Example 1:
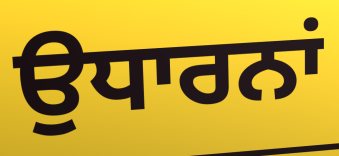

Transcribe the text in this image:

ਉਧਾਰਨਾਂ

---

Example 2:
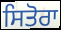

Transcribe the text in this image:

ਸਿਤੋਰਾ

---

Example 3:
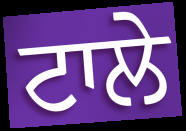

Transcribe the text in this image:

ਟਾਲੇ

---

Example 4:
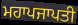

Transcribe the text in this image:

ਮਹਾਪਜਾਪਤੀ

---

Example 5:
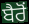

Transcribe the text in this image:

ਬੈਰੋਂ